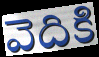
వెదికి